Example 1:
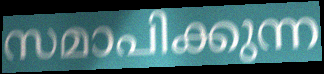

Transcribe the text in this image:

സമാപിക്കുന്ന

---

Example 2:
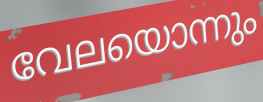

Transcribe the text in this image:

വേലയൊന്നും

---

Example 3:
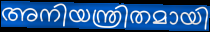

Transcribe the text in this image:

അനിയന്ത്രിതമായി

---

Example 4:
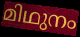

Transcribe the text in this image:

മിഥുനം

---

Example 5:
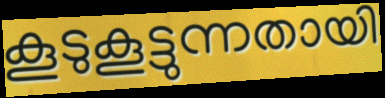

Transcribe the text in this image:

കൂടുകൂട്ടുന്നതായി